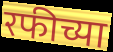
रफीच्या